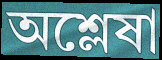
অশ্লেষা